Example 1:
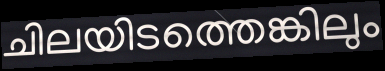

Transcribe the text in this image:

ചിലയിടത്തെങ്കിലും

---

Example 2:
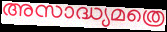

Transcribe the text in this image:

അസാദ്ധ്യമത്രെ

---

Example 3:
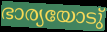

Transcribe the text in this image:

ഭാര്യയോടു്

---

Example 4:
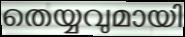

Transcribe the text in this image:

തെയ്യവുമായി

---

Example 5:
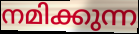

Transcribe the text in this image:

നമിക്കുന്ന